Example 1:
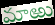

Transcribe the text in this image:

మాఱు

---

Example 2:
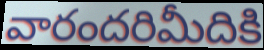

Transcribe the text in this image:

వారందరిమీదికి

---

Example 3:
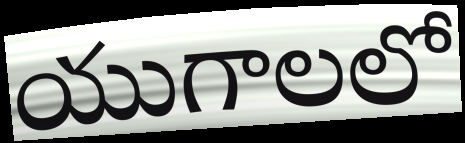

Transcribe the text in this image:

యుగాలలో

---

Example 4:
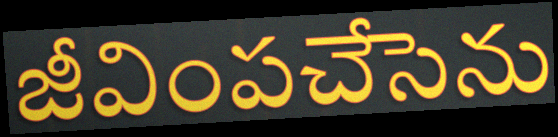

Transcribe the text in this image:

జీవింపచేసెను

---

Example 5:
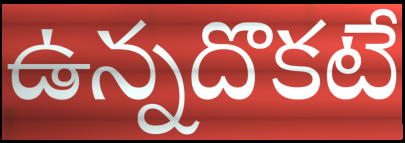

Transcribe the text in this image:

ఉన్నదొకటే